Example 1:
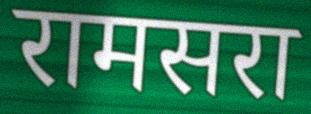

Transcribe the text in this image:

रामसरा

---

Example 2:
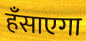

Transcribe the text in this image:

हँसाएगा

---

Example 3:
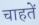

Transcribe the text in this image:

चाहतें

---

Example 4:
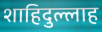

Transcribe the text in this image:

शाहिदुल्लाह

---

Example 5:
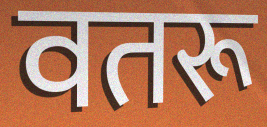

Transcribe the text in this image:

वतरू